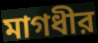
মাগধীর